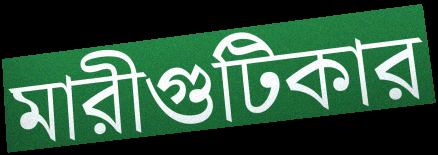
মারীগুটিকার